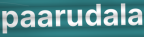
paarudala